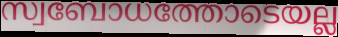
സ്വബോധത്തോടെയല്ല